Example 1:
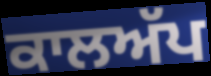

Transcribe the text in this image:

ਕਾਲਅੱਪ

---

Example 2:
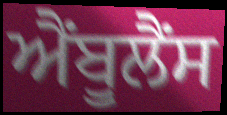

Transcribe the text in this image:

ਐੰਬੂਲੈੰਸ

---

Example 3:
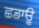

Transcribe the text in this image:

ਛਡਾਊ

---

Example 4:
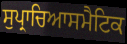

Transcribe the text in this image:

ਸੁਪ੍ਰਾਚਿਆਸਮੈਟਿਕ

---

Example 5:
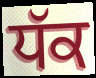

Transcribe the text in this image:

ਧੱਕ